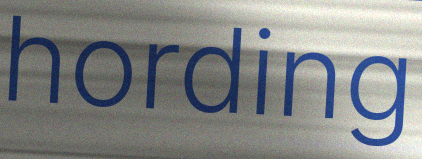
hording